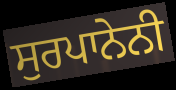
ਸੁਰਪਾਨੇਨੀ